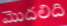
మొదలిది